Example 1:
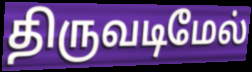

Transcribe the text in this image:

திருவடிமேல்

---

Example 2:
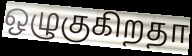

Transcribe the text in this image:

ஒழுகுகிறதா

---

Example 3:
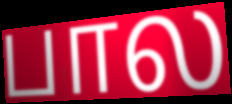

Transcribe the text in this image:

பால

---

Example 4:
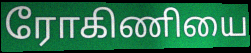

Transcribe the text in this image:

ரோகிணியை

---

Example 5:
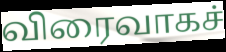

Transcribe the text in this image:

விரைவாகச்